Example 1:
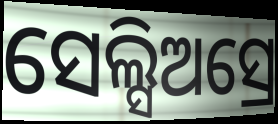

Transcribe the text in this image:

ସେଲ୍ସିଅସ୍ରେ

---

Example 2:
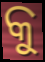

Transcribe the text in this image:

କୁ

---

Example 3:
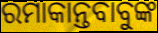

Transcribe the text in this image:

ରମାକାନ୍ତବାବୁଙ୍କ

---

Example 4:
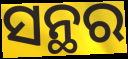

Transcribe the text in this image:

ସନ୍ଥର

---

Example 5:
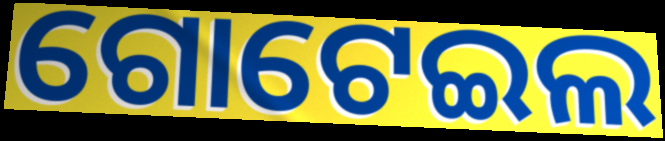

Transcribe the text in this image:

ଗୋଟେଇଲ